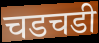
चडचडी